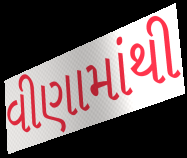
વીણામાંથી